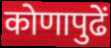
कोणापुढें